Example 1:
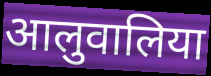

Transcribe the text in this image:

आलुवालिया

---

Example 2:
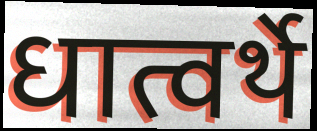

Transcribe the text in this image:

धात्वर्थे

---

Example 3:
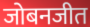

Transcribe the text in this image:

जोबनजीत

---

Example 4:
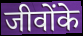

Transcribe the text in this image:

जीवोंके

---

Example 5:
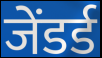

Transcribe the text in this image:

जेंडर्ड